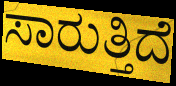
ಸಾರುತ್ತಿದೆ